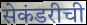
सेकंडरीची